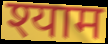
श्‍याम